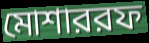
মোশাররফ